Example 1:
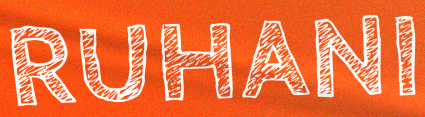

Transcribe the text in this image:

RUHANI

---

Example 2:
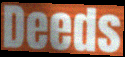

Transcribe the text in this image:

Deeds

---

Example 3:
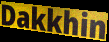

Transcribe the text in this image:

Dakkhin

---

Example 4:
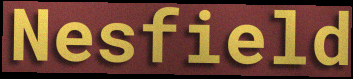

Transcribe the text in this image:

Nesfield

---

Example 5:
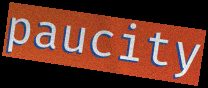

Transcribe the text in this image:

paucity